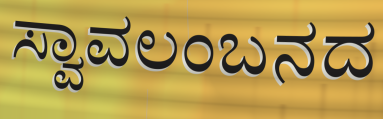
ಸ್ವಾವಲಂಬನದ